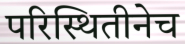
परिस्थितीनेच